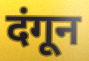
दंगून